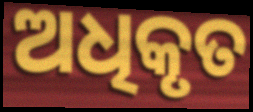
ଅଧିକୃତ